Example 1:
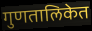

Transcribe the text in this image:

गुणतालिकेत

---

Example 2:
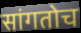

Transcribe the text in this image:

सांगतोच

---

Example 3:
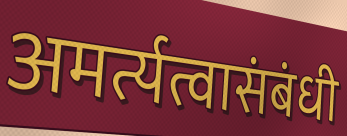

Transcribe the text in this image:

अमर्त्यत्वासंबंधी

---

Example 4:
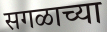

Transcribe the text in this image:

सगळाच्या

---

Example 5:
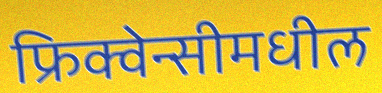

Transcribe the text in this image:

फ्रिक्वेन्सीमधील